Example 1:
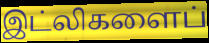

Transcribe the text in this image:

இட்லிகளைப்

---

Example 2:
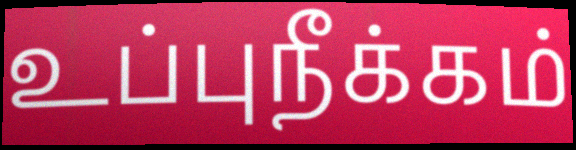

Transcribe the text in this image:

உப்புநீக்கம்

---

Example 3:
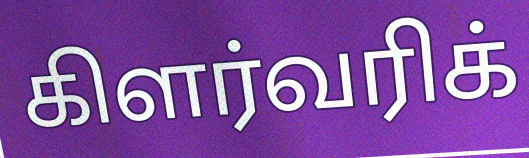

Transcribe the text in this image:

கிளர்வரிக்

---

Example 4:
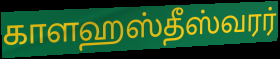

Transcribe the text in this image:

காளஹஸ்தீஸ்வரர்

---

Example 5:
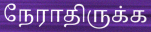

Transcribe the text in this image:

நேராதிருக்க